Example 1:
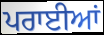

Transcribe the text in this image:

ਪਰਾਈਆਂ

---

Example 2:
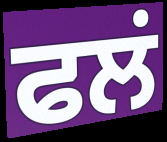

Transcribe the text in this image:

ਫਲਂ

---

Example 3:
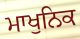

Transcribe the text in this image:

ਮਾਖੁਨਿਕ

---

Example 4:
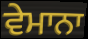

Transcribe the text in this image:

ਵੇਮਾਨਾ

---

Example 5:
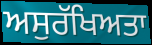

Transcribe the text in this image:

ਅਸੁਰੱਖਿਅਤਾ